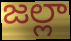
జల్లా